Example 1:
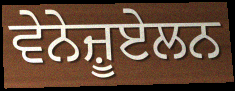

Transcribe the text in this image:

ਵੇਨੇਜ਼ੂਏਲਨ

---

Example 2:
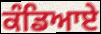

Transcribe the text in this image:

ਕੰਡਿਆਏ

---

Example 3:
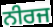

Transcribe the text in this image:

ਨੀਰਜ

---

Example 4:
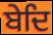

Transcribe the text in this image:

ਬੇਦਿ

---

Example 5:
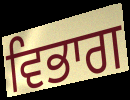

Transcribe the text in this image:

ਵਿਭਾਗ